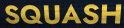
SQUASH